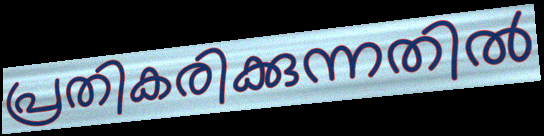
പ്രതികരിക്കുന്നതിൽ